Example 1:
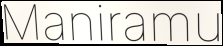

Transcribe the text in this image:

Maniramu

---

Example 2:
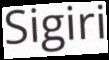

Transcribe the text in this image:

Sigiri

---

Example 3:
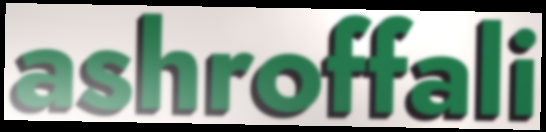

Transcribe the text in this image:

ashroffali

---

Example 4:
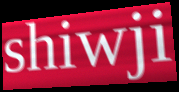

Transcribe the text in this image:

shiwji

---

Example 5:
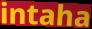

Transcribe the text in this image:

intaha